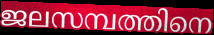
ജലസമ്പത്തിനെ